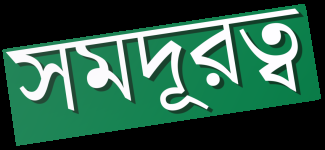
সমদূরত্ব